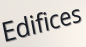
Edifices